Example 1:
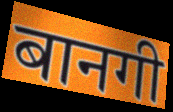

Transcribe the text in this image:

बानगी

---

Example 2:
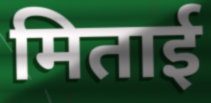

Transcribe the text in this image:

मिताई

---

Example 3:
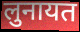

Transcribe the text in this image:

लुनायत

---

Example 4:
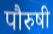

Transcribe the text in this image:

पौरुषी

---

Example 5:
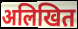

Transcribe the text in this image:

अलिखित